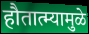
हौतात्म्यामुळे